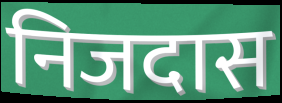
निजदास